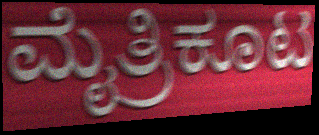
ಮೈತ್ರಿಕೂಟ